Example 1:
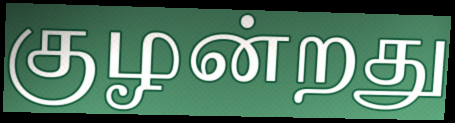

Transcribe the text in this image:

குழன்றது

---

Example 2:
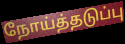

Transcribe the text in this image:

நோய்த்தடுப்பு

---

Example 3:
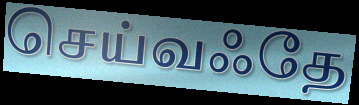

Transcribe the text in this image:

செய்வஃதே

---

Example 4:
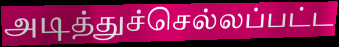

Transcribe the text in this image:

அடித்துச்செல்லப்பட்ட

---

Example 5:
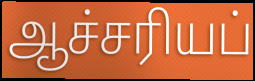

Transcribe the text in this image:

ஆச்சரியப்